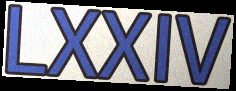
LXXIV